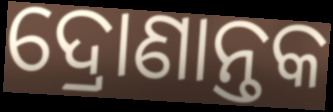
ଦ୍ରୋଣାନ୍ତକ